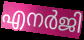
എനർജി